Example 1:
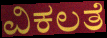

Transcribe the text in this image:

ವಿಕಲತೆ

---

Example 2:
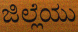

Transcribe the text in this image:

ಜಿಲ್ಲೆಯು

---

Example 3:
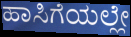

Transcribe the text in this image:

ಹಾಸಿಗೆಯಲ್ಲೇ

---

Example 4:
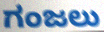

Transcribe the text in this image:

ಗಂಜಲು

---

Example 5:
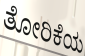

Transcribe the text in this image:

ತೋರಿಕೆಯ